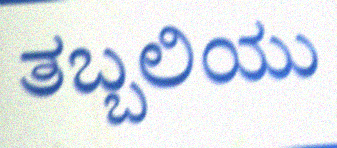
ತಬ್ಬಲಿಯು